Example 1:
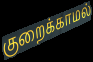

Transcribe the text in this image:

குறைக்காமல்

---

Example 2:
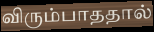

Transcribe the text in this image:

விரும்பாததால்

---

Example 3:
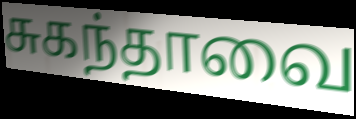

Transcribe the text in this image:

சுகந்தாவை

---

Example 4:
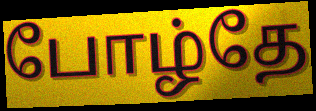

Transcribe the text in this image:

போழ்தே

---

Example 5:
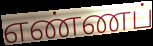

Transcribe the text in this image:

எண்ணப்